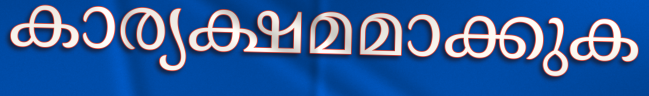
കാര്യക്ഷമമാക്കുക